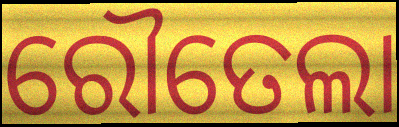
ରୌତେଲା